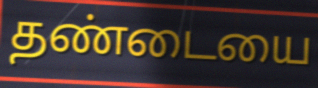
தண்டையை